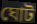
ঘোট